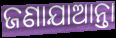
ଜଣାଯାଆନ୍ତା